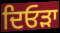
ਦਿਓੜਾ